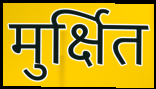
मुर्क्षित